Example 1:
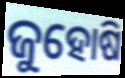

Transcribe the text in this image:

ଜୁହୋଷି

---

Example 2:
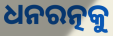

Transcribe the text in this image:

ଧନରତ୍ନକୁ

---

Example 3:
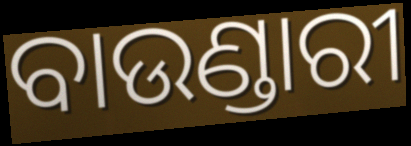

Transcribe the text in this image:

ବାଉଣ୍ଡାରୀ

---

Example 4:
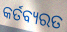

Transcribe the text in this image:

କର୍ତବ୍ୟରତ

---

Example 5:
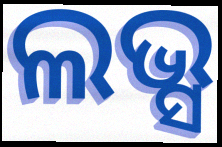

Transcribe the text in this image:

ଲଭ୍ସ